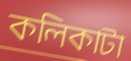
কলিকাটা